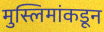
मुस्लिमांकडून